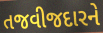
તજવીજદારને